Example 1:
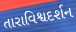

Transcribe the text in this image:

તારાવિશ્વદર્શન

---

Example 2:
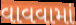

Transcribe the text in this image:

વાવવામાં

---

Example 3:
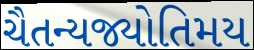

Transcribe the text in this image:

ચૈતન્યજ્યોતિમય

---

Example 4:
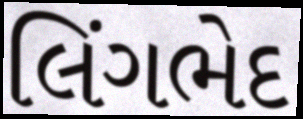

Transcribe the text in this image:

લિંગભેદ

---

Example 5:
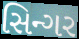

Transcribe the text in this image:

સિન્ગર